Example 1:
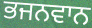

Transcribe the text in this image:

ਭਜਨਵਾਨ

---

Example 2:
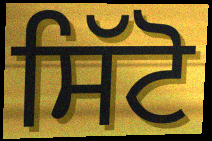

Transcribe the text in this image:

ਸਿੱਟੋ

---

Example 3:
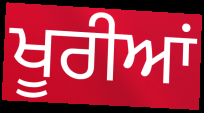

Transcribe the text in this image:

ਖੂਰੀਆਂ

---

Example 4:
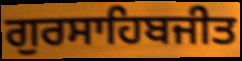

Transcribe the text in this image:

ਗੁਰਸਾਹਿਬਜੀਤ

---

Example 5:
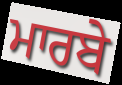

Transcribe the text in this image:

ਮਾਰਬੇ